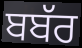
ਬਬੱਰ